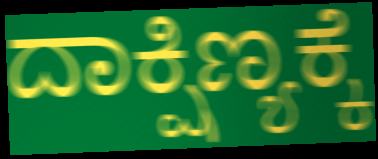
ದಾಕ್ಷಿಣ್ಯಕ್ಕೆ